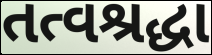
તત્વશ્રદ્ધા